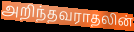
அறிந்தவராதலின்